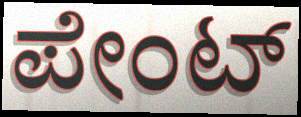
ಪೇಂಟ್